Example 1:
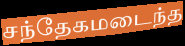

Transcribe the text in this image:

சந்தேகமடைந்த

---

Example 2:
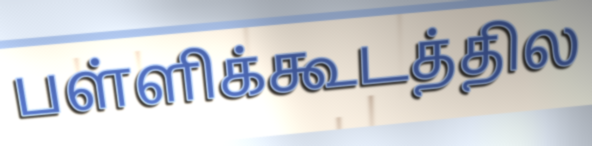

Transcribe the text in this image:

பள்ளிக்கூடத்தில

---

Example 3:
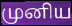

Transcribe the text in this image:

முனிய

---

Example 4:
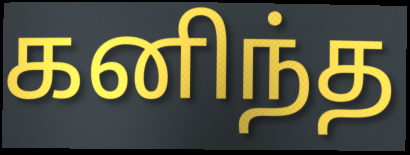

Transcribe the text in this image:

கனிந்த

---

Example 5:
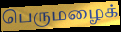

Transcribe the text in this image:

பெருமழைக்